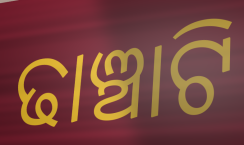
ଢାଞ୍ଚାଟି